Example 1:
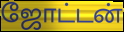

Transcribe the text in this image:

ஜோட்டன்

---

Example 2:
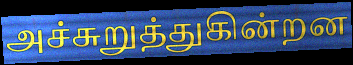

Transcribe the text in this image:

அச்சுறுத்துகின்றன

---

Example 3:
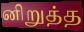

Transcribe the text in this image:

னிறுத்த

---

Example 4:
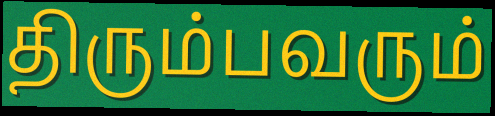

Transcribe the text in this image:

திரும்பவரும்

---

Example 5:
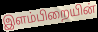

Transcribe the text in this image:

இளம்பிறையின்